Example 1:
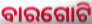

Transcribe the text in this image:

ବାରଗୋଟି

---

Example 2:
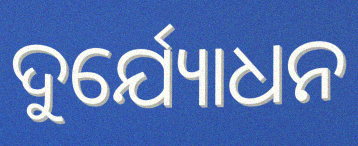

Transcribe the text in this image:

ଦୁର୍ଯ୍ୟୋଧନ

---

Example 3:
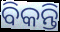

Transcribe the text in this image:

ବିକନ୍ତି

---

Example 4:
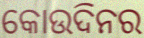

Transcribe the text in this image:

କୋଉଦିନର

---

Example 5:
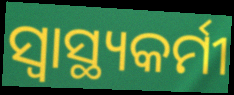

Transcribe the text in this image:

ସ୍ୱାସ୍ଥ୍ୟକର୍ମୀ